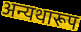
अन्यथारूप